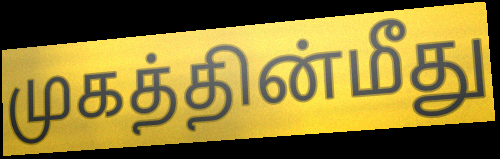
முகத்தின்மீது